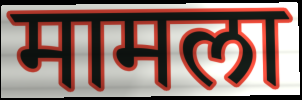
मामला